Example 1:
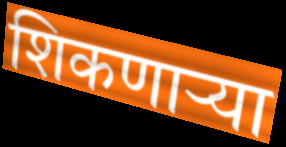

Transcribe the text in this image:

शिकणार्‍या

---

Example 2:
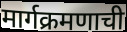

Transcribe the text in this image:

मार्गक्रमणाची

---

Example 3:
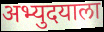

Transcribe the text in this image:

अभ्युदयाला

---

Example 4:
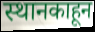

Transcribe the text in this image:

स्थानकाहून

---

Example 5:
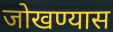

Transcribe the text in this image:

जोखण्यास